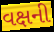
વક્ષની